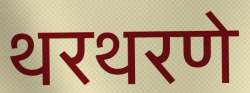
थरथरणे